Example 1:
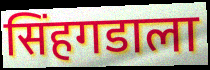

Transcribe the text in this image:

सिंहगडाला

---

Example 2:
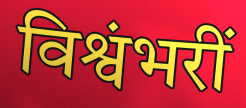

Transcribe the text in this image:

विश्वंभरीं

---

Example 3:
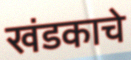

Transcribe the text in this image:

खंडकाचे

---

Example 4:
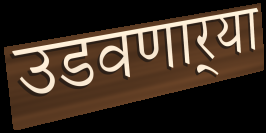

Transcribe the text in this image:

उडवणार्या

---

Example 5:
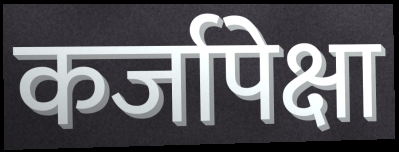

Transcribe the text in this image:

कर्जापेक्षा